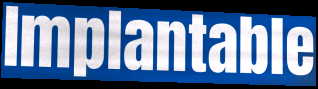
Implantable